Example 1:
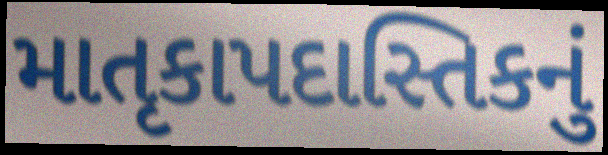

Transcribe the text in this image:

માતૃકાપદાસ્તિકનું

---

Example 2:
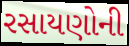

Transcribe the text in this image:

રસાયણોની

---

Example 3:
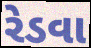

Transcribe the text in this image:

રેડવા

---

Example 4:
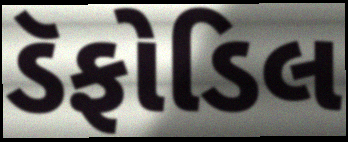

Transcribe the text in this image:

ડૅફોડિલ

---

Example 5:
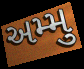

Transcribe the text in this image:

અમ્મુ